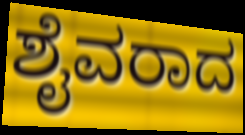
ಶೈವರಾದ